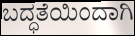
ಬದ್ಧತೆಯಿಂದಾಗಿ